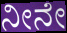
ನೀನೇ